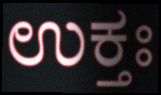
ಉಕ್ತಃ